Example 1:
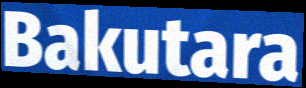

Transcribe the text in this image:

Bakutara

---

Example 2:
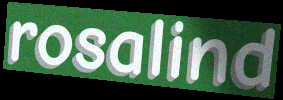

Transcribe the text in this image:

rosalind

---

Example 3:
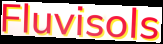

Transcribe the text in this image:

Fluvisols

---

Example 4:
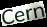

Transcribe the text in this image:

Cern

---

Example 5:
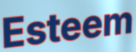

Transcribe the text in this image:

Esteem